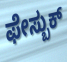
ಫೇಸ್ಬುಕ್